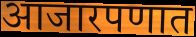
आजारपणात